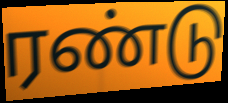
ரண்டு